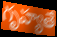
గృహ్యతే